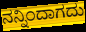
ನನ್ನಿಂದಾಗದು